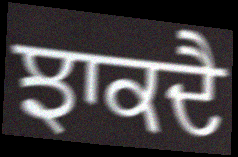
ਝਾਕਦੈ